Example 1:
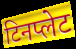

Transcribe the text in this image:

टिनप्लेट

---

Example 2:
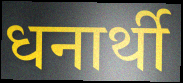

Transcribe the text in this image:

धनार्थी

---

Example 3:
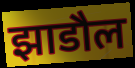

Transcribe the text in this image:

झाडौल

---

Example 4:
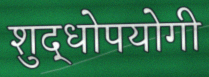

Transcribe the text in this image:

शुद्धोपयोगी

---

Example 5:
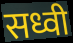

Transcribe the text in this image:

सध्वी